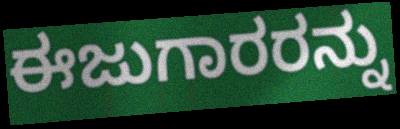
ಈಜುಗಾರರನ್ನು